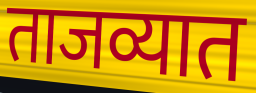
ताजव्यात